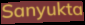
Sanyukta